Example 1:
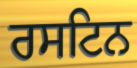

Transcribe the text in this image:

ਰਸਟਿਨ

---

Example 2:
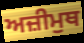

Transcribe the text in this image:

ਅਜ਼ੀਮੁਥ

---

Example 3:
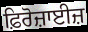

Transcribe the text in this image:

ਫ਼ਿਰੋਜ਼ਾਈਜ਼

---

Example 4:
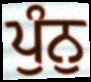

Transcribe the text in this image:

ਪੁੰਨੁ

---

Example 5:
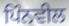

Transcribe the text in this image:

ਪਿੰਨਵੀਲ